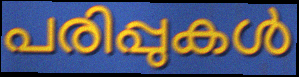
പരിപ്പുകൾ